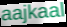
aajkaal